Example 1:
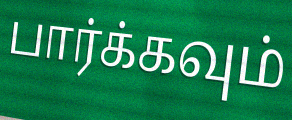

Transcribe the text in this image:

பார்க்கவும்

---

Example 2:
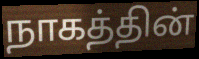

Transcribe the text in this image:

நாகத்தின்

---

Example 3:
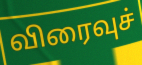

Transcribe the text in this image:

விரைவுச்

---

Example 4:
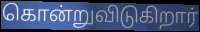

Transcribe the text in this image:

கொன்றுவிடுகிறார்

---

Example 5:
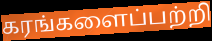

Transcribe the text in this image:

கரங்களைப்பற்றி